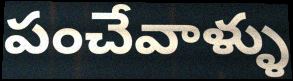
పంచేవాళ్ళు